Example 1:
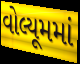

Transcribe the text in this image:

વોલ્યૂમમાં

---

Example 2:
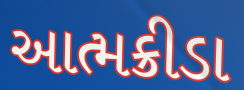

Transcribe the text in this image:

આત્મક્રીડા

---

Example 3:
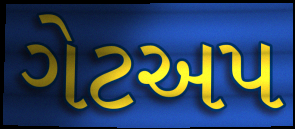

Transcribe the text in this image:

ગેટઅપ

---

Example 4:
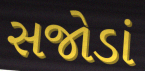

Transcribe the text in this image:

સજોડાં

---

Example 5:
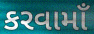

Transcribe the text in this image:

કરવામાઁ